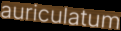
auriculatum